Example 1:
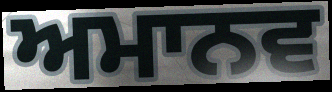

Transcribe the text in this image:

ਅਮਾਨਵ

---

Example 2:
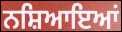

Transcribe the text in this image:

ਨਸ਼ਿਆਇਆਂ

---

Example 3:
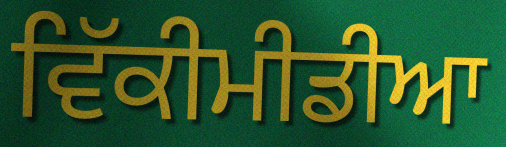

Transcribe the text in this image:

ਵਿੱਕੀਮੀਡੀਆ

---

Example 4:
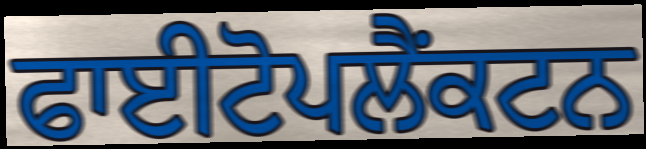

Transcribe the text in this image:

ਫਾਈਟੋਪਲੈਂਕਟਨ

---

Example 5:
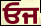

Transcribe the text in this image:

ਓਜ